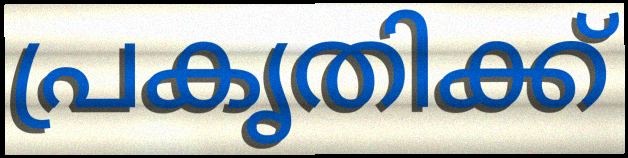
പ്രകൃതിക്ക്